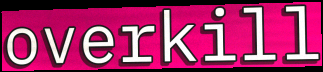
overkill